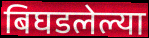
बिघडलेल्या